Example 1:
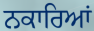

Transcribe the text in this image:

ਨਕਾਰਿਆਂ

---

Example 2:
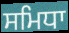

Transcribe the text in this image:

ਸਮਿਧਾ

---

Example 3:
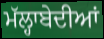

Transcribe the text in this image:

ਮੱਲ੍ਹਾਬੇਦੀਆਂ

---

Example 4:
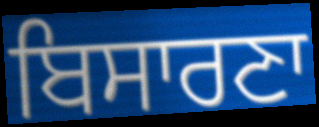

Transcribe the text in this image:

ਬਿਸਾਰਣਾ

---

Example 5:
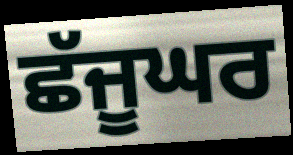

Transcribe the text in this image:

ਛੱਜੂਘਰ